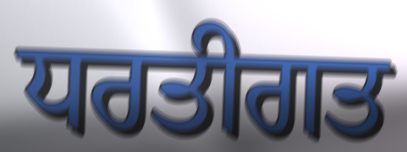
ਧਰਤੀਗਤ